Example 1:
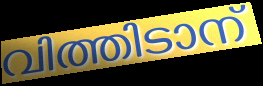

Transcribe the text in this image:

വിത്തിടാന്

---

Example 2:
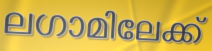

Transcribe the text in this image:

ലഗാമിലേക്ക്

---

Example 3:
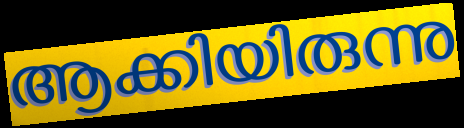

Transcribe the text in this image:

ആക്കിയിരുന്നു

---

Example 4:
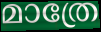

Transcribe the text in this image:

മാത്രേ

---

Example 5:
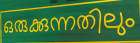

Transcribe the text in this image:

ഒരുക്കുന്നതിലും